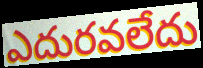
ఎదురవలేదు